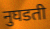
नुघडती